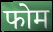
फोम